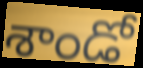
శాండో